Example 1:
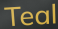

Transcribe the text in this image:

Teal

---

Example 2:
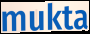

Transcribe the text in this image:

mukta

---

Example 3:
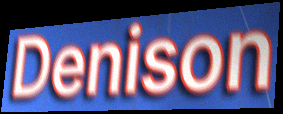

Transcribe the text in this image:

Denison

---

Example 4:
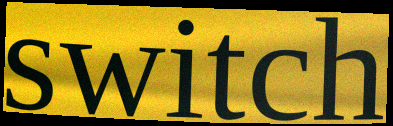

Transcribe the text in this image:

switch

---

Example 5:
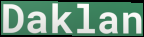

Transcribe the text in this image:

Daklan